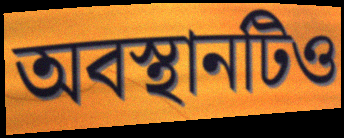
অবস্থানটিও